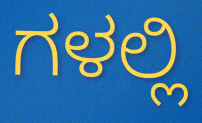
ಗಳಲ್ಲಿ